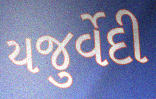
યજુર્વેદી